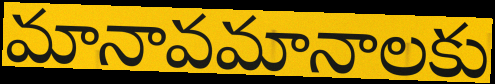
మానావమానాలకు